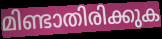
മിണ്ടാതിരിക്കുക